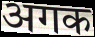
अगक